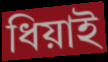
ধিয়াই